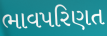
ભાવપરિણત